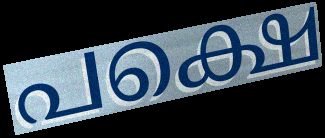
പക്ഷെ